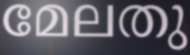
മേലതു